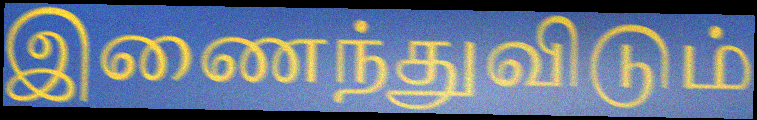
இணைந்துவிடும்